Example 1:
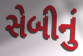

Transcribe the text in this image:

સેબીનું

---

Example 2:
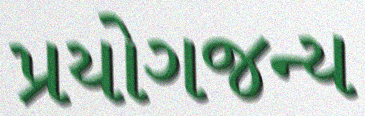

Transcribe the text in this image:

પ્રયોગજન્ય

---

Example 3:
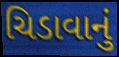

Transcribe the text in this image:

ચિડાવાનું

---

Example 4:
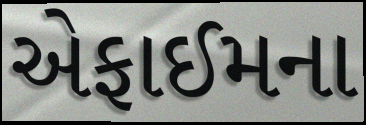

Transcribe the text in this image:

એફાઈમના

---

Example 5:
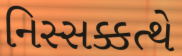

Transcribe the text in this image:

નિસ્સક્કત્થે